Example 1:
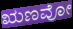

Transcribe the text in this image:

ಋಣವೋ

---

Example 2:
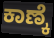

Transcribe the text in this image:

ಕಾಣ್ಕೆ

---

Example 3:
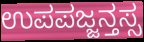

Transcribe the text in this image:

ಉಪಪಜ್ಜನ್ತಸ್ಸ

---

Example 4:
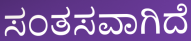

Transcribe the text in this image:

ಸಂತಸವಾಗಿದೆ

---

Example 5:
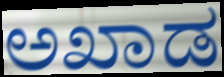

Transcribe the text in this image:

ಅಖಾಡ